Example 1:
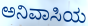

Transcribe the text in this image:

ಅನಿವಾಸಿಯ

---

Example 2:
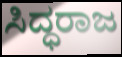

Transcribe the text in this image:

ಸಿದ್ಧರಾಜ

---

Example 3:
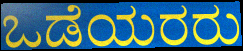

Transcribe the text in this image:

ಒಡೆಯರರು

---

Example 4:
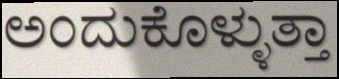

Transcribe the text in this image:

ಅಂದುಕೊಳ್ಳುತ್ತಾ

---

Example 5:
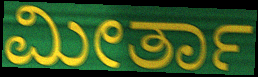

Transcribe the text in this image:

ಮೀರ್ತಾ